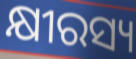
କ୍ଷୀରସ୍ୟ